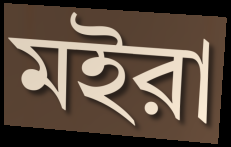
মইরা